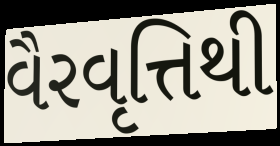
વૈરવૃત્તિથી